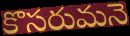
కొసరుమనె